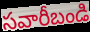
సవారీబండి